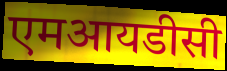
एमआयडीसी